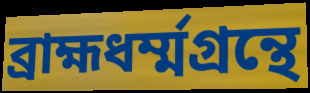
ব্রাহ্মধর্ম্মগ্রন্থে